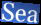
Sea